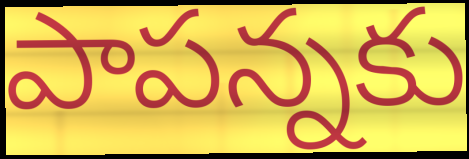
పాపన్నకు